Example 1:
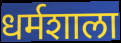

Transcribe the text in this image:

धर्मशाला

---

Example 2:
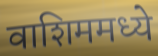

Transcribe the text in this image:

वाशिममध्ये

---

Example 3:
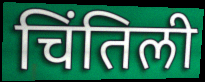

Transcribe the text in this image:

चिंतिली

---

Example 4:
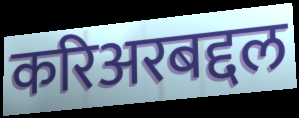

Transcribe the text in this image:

करिअरबद्दल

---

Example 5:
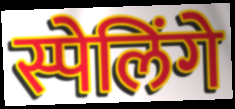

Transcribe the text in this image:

स्पेलिंगे